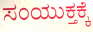
ಸಂಯುಕ್ತಕ್ಕೆ